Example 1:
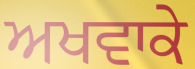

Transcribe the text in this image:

ਅਖਵਾਕੇ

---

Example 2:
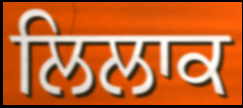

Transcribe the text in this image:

ਲਿਲਾਕ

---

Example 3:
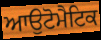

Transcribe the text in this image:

ਆਉਟੋਮੈਟਿਕ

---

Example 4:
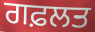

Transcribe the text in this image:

ਗਫ਼ਲਤ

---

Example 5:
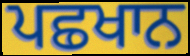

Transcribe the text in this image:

ਪਛਖਾਨ